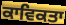
ਕਾਵਿਕਤਾ